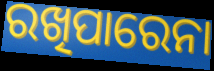
ରଖିପାରେନା